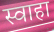
स्वाहा